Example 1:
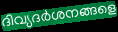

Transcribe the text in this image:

ദിവ്യദർശനങ്ങളെ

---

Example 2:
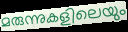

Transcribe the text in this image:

മരുന്നുകളിലെയും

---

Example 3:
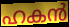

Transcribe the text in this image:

ഹകൻ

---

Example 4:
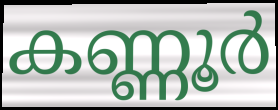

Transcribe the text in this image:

കണ്ണൂർ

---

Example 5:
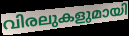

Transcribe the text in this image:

വിരലുകളുമായി